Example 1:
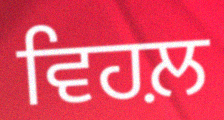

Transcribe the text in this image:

ਵਿਹਲ਼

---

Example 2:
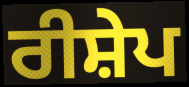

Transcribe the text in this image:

ਰੀਸ਼ੇਪ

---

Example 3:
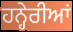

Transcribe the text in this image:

ਹਨ੍ਹੇਰੀਆਂ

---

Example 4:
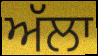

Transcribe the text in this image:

ਅੱਲਾ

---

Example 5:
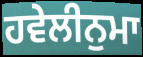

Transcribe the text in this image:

ਹਵੇਲੀਨੁਮਾ